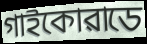
গাইকোৱাডে